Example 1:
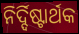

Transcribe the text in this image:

ନିର୍ଦ୍ଦିଷ୍ଟାର୍ଥକ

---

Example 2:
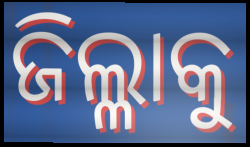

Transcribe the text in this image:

ଜିଲ୍ଳାକୁ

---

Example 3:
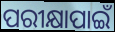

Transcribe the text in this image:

ପରୀକ୍ଷାପାଇଁ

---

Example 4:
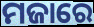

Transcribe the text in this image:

ମଜାରେ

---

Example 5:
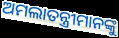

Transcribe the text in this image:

ଅମଲାତନ୍ତ୍ରୀମାନଙ୍କୁ